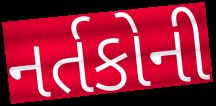
નર્તકોની